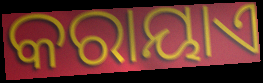
କରାୟାଏ